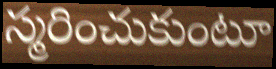
స్మరించుకుంటూ